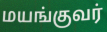
மயங்குவர்